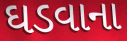
ઘડવાના